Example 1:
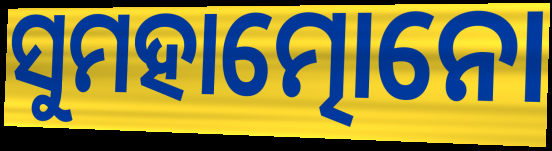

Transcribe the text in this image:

ସୁମହାତ୍ମୋନୋ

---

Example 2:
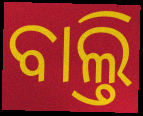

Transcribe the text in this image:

ବାଲ୍ତି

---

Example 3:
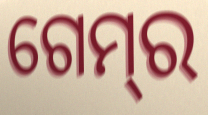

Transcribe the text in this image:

ଗେମ୍‌ର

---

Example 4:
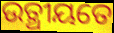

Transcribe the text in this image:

ଉତ୍ଥୀୟତେ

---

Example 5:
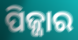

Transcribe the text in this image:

ପିଜ୍ଜାର